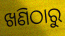
ଖଣିଠାରୁ